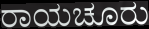
ರಾಯಚೂರು